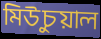
মিউচুয়াল